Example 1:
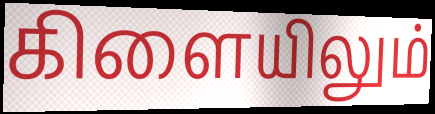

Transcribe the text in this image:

கிளையிலும்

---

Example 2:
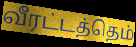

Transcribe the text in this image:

வீரட்டத்தெம்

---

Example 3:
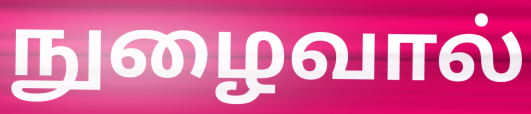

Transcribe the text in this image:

நுழைவால்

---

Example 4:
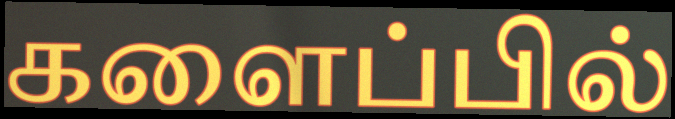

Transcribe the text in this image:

களைப்பில்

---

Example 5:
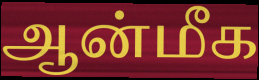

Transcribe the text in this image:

ஆன்மீக